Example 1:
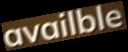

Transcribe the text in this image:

availble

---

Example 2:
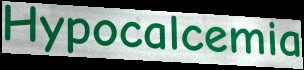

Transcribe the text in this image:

Hypocalcemia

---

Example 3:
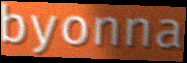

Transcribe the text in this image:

byonna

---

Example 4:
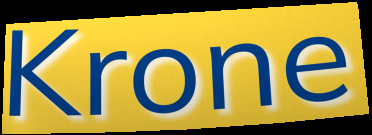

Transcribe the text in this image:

Krone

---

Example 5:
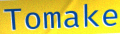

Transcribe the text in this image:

Tomake